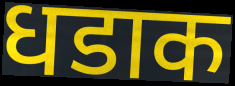
धडाक